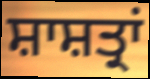
ਸ਼ਾਸ਼ਤ੍ਰਾਂ